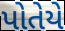
પોતેયે